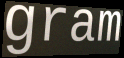
gram